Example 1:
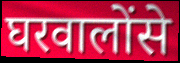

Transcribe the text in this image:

घरवालोंसे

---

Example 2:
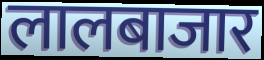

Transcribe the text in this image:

लालबाजार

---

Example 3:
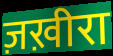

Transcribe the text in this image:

ज़ख़ीरा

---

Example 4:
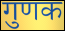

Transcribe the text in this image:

गुणक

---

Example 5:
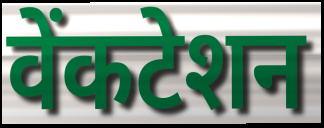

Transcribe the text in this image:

वेंकटेशन